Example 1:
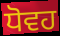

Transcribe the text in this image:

ਧੋਵਹ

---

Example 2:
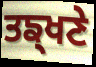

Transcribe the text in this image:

ਤਙ੍ਖਣੇ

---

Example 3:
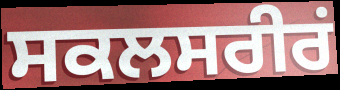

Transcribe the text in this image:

ਸਕਲਸਰੀਰਂ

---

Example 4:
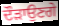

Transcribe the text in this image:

ਦੌੜਾਉਣਗੇ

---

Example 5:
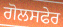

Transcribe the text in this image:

ਗੋਲਸਫੇਰ